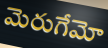
మెరుగేమో